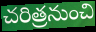
చరిత్రనుంచి